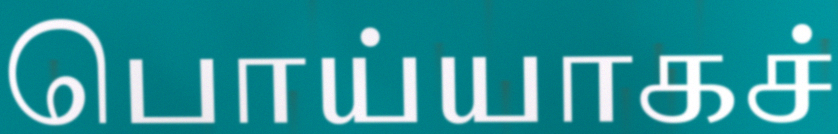
பொய்யாகச்